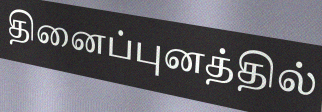
தினைப்புனத்தில்